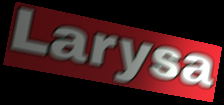
Larysa